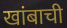
खांबाची